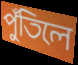
পুঁতিলে